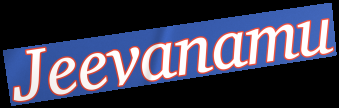
Jeevanamu